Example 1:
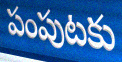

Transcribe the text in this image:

పంపుటకు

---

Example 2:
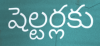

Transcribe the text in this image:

షెల్టర్లకు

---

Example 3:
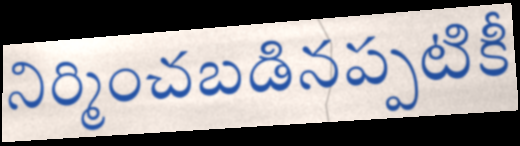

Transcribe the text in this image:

నిర్మించబడినప్పటికీ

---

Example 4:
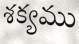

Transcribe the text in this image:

శక్యము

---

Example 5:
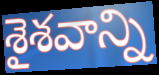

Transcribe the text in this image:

శైశవాన్ని